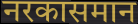
नरकासमान